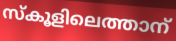
സ്കൂളിലെത്താന്